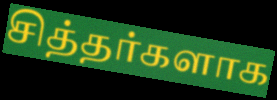
சித்தர்களாக